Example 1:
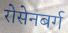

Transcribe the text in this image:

रोसेनबर्ग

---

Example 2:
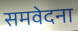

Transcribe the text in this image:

समवेदना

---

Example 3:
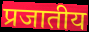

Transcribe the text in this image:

प्रजातीय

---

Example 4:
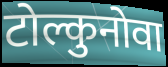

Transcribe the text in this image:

टोल्कुनोवा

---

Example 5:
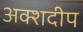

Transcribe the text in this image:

अक्शदीप